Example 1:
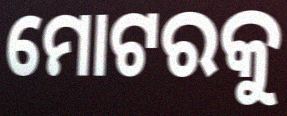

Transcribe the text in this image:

ମୋଟରକୁ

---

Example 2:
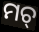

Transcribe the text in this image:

ମଚ୍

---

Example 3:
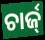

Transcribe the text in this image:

ଚାର୍ଜ୍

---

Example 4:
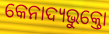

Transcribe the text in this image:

କେନାଦ୍ୟଭୁକ୍ତୋ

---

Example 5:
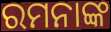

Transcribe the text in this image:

ରମନାଙ୍କ